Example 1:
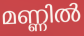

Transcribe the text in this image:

മണ്ണിൽ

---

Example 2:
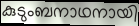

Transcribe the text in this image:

കുടുംബനാഥനായി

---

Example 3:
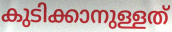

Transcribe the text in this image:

കുടിക്കാനുള്ളത്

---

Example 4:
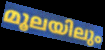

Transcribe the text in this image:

മൂലയിലും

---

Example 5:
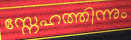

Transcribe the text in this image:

സ്നേഹത്തിന്നും